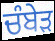
ਚੰਬੇੜ